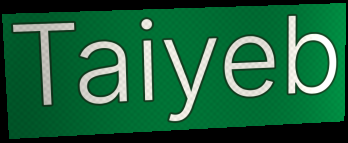
Taiyeb